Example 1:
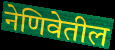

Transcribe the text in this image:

नेणिवेतील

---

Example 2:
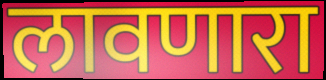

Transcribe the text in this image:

लावणारा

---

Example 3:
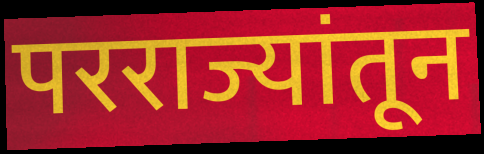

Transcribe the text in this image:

परराज्यांतून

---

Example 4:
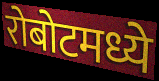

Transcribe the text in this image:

रोबोटमध्ये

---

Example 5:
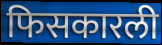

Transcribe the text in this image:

फिसकारली